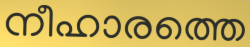
നീഹാരത്തെ